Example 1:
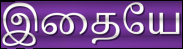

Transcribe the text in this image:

இதையே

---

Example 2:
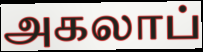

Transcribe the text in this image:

அகலாப்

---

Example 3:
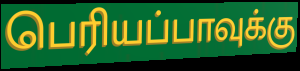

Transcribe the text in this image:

பெரியப்பாவுக்கு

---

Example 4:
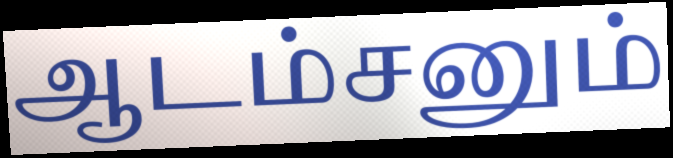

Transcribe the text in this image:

ஆடம்சனும்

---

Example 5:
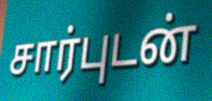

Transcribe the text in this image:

சார்புடன்